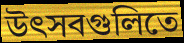
উৎসবগুলিতে